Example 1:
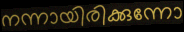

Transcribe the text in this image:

നന്നായിരിക്കുന്നോ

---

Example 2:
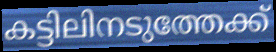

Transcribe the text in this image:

കട്ടിലിനടുത്തേക്ക്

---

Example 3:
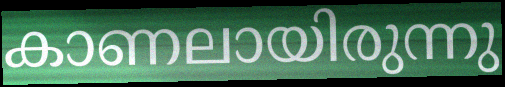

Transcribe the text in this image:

കാണലായിരുന്നു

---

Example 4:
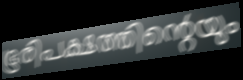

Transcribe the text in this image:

ഭൂരിപക്ഷത്തിന്റെയും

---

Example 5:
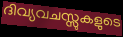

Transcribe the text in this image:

ദിവ്യവചസ്സുകളുടെ